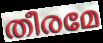
തീരമേ